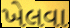
ખેલવા